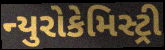
ન્યુરોકેમિસ્ટ્રી